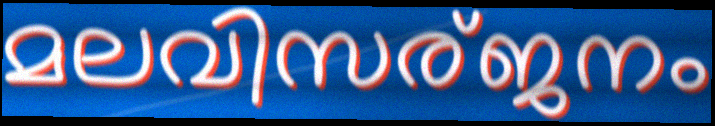
മലവിസര്ജനം